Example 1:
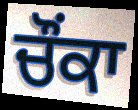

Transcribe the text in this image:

ਚੌਂਕਾ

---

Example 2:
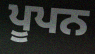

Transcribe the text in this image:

ਪੂਪਨ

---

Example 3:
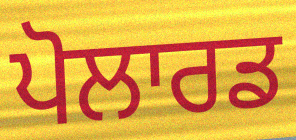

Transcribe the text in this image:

ਪੋਲਾਰਡ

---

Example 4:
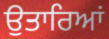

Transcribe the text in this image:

ਉਤਾਰਿਆਂ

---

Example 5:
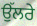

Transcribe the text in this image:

ਉੱਲਰੇ